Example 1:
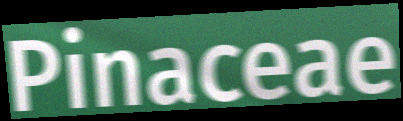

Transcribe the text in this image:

Pinaceae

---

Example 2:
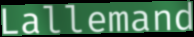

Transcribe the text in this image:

Lallemand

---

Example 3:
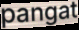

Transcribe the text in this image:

pangat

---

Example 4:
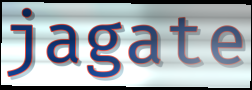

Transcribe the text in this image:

jagate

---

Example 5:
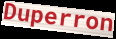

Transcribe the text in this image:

Duperron